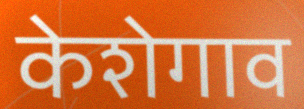
केशेगाव